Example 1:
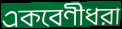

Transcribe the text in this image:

একবেণীধরা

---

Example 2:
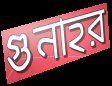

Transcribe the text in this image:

গুনাহর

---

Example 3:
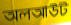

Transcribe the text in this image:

অলআউট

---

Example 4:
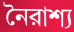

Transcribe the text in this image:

নৈরাশ্য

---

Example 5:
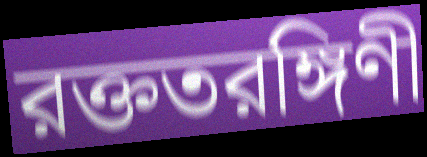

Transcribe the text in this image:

রক্ততরঙ্গিণী